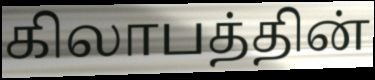
கிலாபத்தின்